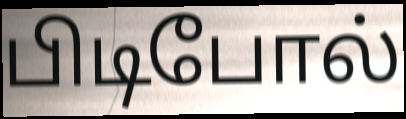
பிடிபோல்